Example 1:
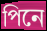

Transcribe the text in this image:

পিনে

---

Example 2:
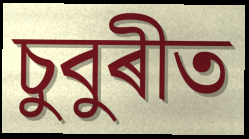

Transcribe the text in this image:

চুবুৰীত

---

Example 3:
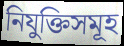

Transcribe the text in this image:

নিযুক্তিসমূহ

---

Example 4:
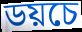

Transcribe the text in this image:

ডয়চে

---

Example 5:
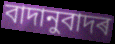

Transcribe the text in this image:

বাদানুবাদৰ